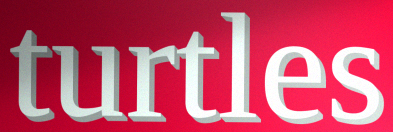
turtles